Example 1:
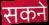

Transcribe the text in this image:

सकने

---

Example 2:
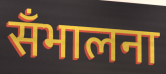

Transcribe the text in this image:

सँभालना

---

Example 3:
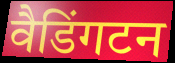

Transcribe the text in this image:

वैडिंगटन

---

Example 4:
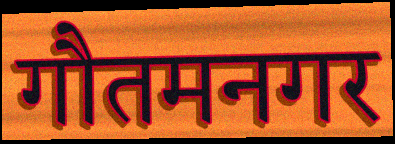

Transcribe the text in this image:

गौतमनगर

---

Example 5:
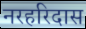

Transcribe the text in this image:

नरहरिदास